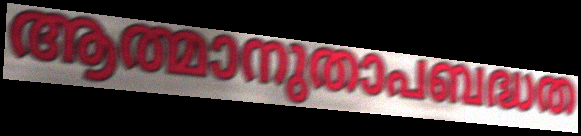
ആത്മാനുതാപബദ്ധത